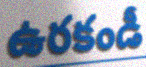
ఉరకండీ